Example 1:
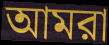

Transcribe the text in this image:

আমরা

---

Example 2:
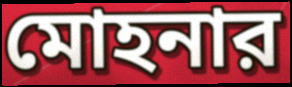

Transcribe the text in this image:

মোহনার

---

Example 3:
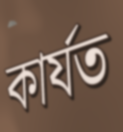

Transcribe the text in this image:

কার্যত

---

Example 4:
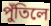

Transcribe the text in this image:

পুঁতিলে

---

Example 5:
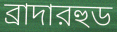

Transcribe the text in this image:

ব্রাদারহুড